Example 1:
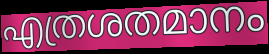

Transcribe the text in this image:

എത്രശതമാനം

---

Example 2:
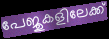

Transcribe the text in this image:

പേജുകളിലേക്ക്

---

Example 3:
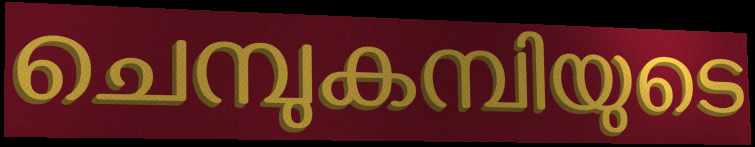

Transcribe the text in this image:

ചെമ്പുകമ്പിയുടെ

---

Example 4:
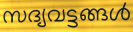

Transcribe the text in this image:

സദ്യവട്ടങ്ങൾ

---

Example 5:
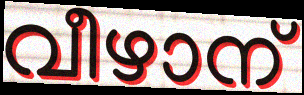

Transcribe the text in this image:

വീഴാന്